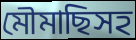
মৌমাছিসহ